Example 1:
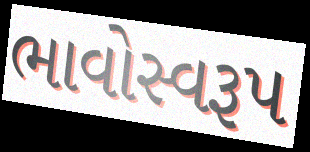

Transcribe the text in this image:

ભાવોસ્વરૂપ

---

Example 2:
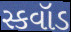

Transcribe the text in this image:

સ્કવૉડ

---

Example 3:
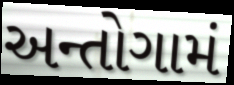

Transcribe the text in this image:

અન્તોગામં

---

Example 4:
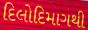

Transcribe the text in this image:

દિલોદિમાગથી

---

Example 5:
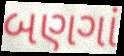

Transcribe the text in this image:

બણગાં